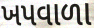
ખપવાળા